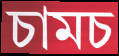
চামচ